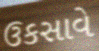
ઉકસાવે